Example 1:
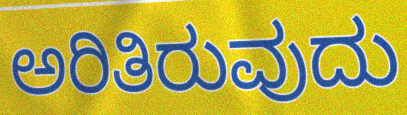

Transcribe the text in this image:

ಅರಿತಿರುವುದು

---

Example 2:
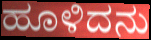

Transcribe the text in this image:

ಹೂಳಿದನು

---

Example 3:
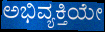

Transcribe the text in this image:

ಅಭಿವ್ಯಕ್ತಿಯೇ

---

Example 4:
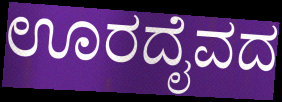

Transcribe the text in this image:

ಊರದೈವದ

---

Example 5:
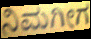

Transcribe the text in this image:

ನಿಮಗೀಗ